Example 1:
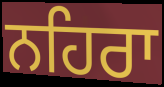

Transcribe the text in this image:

ਨਹਿਰਾ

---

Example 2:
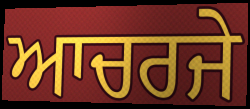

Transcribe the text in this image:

ਆਚਰਜੇ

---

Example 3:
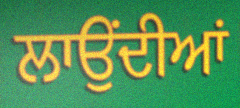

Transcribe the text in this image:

ਲਾਉਂਦੀਆਂ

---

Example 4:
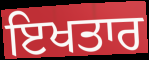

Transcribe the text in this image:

ਇਖਤਾਰ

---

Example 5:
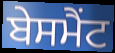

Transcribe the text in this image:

ਬੇਸਮੈਂਟ